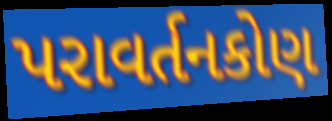
પરાવર્તનકોણ